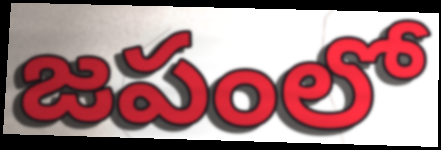
జపంలో